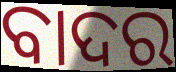
ବାଦର